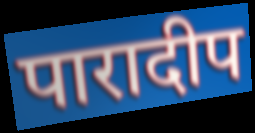
पारादीप